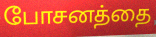
போசனத்தை